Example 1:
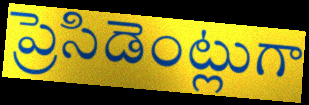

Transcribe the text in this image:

ప్రెసిడెంట్లుగా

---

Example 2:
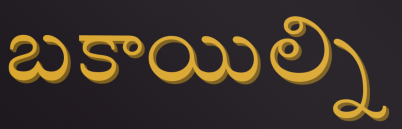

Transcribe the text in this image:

బకాయిల్ని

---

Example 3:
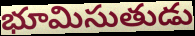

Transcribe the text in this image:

భూమిసుతుడు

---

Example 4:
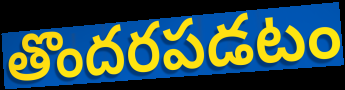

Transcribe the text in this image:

తొందరపడటం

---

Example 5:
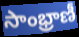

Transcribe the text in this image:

సాంభ్రాణీ